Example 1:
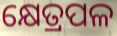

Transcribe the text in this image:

କ୍ଷେତ୍ରପଳ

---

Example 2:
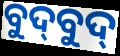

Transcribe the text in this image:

ବୁଦ୍‍ବୁଦ୍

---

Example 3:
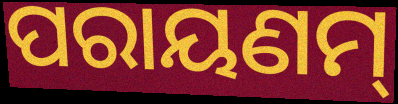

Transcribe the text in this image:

ପରାୟଣମ୍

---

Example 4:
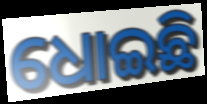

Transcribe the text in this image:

ଧୋଇଛି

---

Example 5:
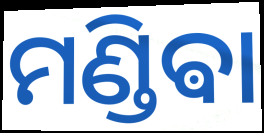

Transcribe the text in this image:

ମଣ୍ଡିଵା